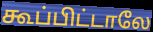
கூப்பிட்டாலே